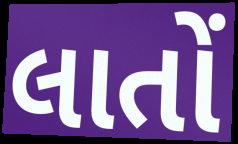
લાતોં